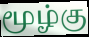
மூழ்கு